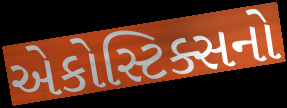
એકોસ્ટિક્સનો